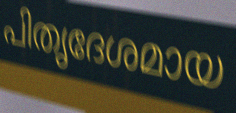
പിതൃദേശമായ